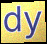
dy